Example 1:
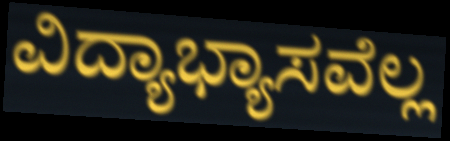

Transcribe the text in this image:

ವಿದ್ಯಾಭ್ಯಾಸವೆಲ್ಲ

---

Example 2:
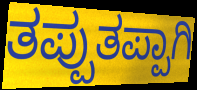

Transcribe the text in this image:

ತಪ್ಪುತಪ್ಪಾಗಿ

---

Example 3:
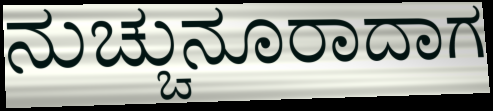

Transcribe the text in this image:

ನುಚ್ಚುನೂರಾದಾಗ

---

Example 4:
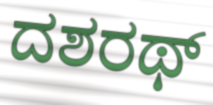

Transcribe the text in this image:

ದಶರಥ್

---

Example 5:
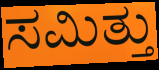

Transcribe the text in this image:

ಸಮಿತ್ತು